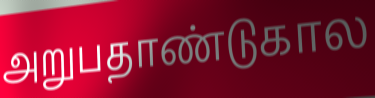
அறுபதாண்டுகால